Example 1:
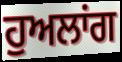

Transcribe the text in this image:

ਹੁਅਲਾਂਗ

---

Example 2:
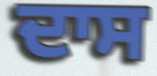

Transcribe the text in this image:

ਦਾਸ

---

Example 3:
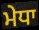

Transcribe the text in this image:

ਮੇਧਾ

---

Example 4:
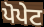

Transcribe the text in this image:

ਪੋਪੇਟ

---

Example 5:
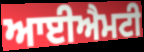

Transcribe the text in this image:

ਆਈਐਮਟੀ